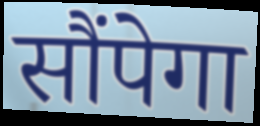
सौंपेगा